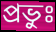
প্রভুঃ